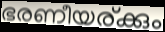
ഭരണീയര്ക്കും